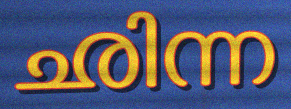
ഛിന്ന